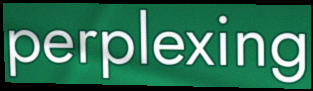
perplexing